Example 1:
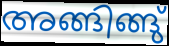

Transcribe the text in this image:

അങ്ങിങ്ങു്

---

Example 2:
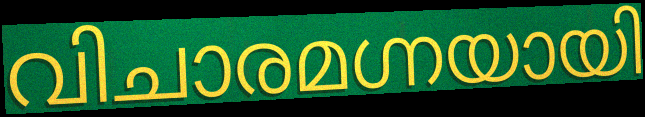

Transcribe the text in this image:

വിചാരമഗ്നയായി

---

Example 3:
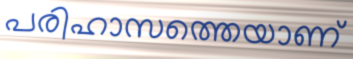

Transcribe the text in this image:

പരിഹാസത്തെയാണ്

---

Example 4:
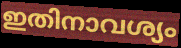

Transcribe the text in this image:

ഇതിനാവശ്യം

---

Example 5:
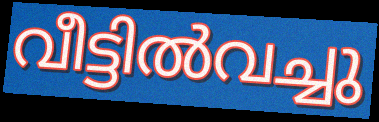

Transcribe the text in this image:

വീട്ടിൽവച്ചു